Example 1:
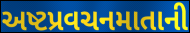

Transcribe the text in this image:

અષ્ટપ્રવચનમાતાની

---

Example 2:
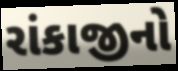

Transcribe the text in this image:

રાંકાજીનો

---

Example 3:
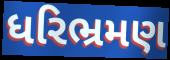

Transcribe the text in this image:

ધરિભ્રમણ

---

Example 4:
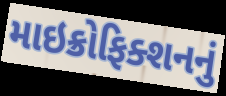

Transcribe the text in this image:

માઇક્રોફિક્શનનું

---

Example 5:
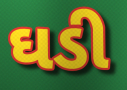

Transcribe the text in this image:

ઘડી